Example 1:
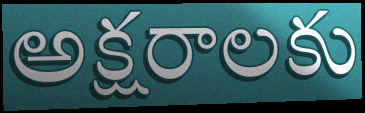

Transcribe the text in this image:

అక్షరాలకు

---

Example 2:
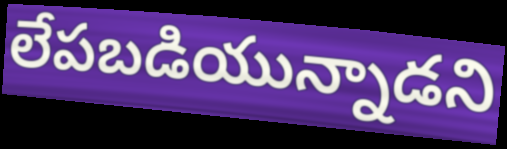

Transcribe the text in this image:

లేపబడియున్నాడని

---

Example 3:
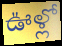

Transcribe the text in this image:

ఊళ్లో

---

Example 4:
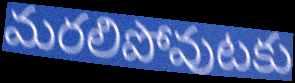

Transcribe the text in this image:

మరలిపోవుటకు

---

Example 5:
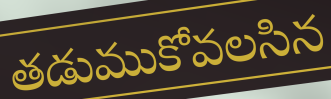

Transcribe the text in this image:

తడుముకోవలసిన